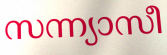
സന്ന്യാസീ